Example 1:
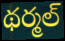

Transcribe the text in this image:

థర్మల్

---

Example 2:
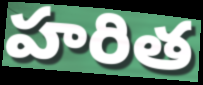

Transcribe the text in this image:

హరిత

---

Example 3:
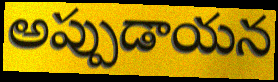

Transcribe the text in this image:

అప్పుడాయన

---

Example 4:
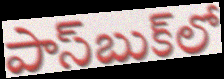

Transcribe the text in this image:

పాస్‌బుక్‌లో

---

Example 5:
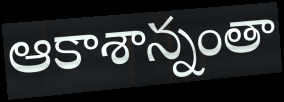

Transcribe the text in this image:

ఆకాశాన్నంతా